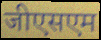
जीएसएम